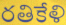
రతికేళి